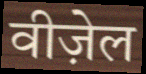
वीज़ेल